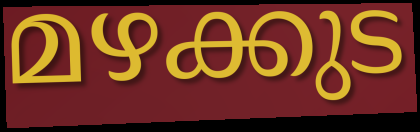
മഴക്കുട